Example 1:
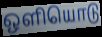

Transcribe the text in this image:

ஒளியொடு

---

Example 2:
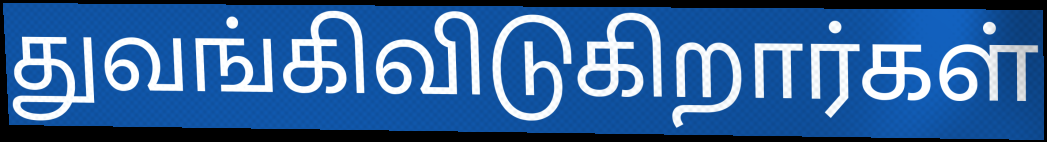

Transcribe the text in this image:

துவங்கிவிடுகிறார்கள்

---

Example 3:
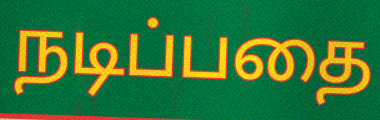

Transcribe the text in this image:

நடிப்பதை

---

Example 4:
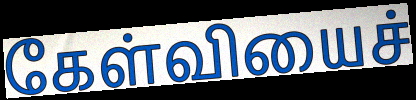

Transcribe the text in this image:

கேள்வியைச்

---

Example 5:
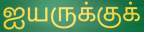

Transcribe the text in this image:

ஐயருக்குக்